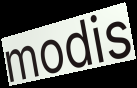
modis